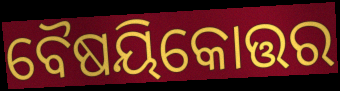
ବୈଷୟିକୋତ୍ତର